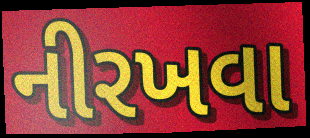
નીરખવા